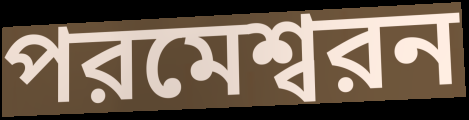
পরমেশ্বরন